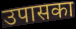
उपासका